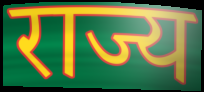
राज्य